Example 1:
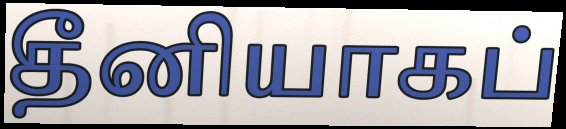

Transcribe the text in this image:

தீனியாகப்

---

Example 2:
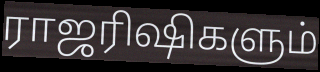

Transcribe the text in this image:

ராஜரிஷிகளும்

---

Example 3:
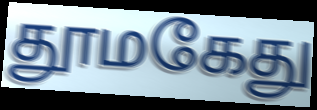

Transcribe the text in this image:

தூமகேது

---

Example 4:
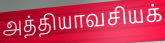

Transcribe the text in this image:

அத்தியாவசியக்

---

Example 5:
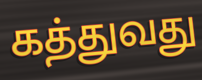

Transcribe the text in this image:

கத்துவது